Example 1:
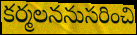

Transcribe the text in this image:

కర్మలననుసరించి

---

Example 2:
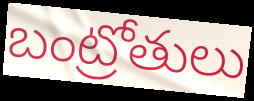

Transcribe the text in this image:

బంట్రోతులు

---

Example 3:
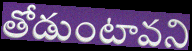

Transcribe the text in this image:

తోడుంటావని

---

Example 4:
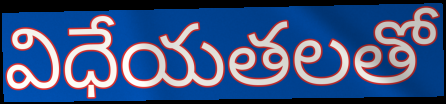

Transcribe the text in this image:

విధేయతలతో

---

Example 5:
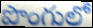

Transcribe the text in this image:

పొంగులో